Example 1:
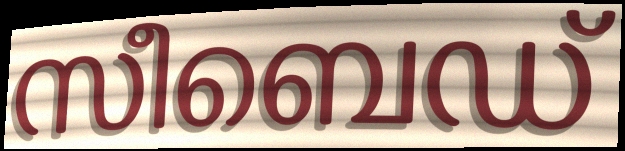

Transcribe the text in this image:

സീബെഡ്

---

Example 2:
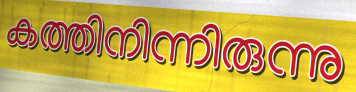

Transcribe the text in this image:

കത്തിനിന്നിരുന്നു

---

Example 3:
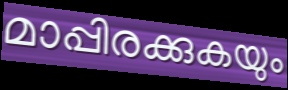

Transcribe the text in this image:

മാപ്പിരക്കുകയും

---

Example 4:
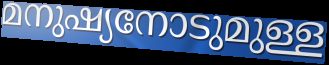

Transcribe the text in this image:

മനുഷ്യനോടുമുള്ള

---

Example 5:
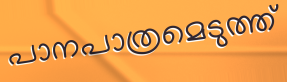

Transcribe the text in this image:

പാനപാത്രമെടുത്ത്